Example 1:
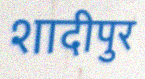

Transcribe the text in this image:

शादीपुर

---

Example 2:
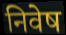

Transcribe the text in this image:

निवेष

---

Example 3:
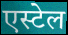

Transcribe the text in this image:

एस्टेल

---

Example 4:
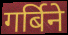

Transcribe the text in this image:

गर्बिने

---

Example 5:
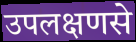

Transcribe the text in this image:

उपलक्षणसे